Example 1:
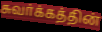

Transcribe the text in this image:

சுவர்க்கத்தின்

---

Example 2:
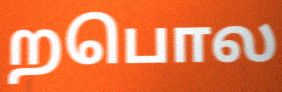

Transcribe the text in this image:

றபொல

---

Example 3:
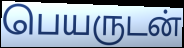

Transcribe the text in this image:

பெயருடன்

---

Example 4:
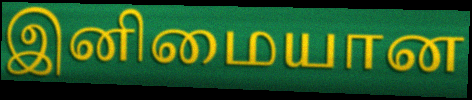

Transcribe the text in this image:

இனிமையான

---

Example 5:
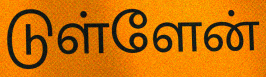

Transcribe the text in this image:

டுள்ளேன்